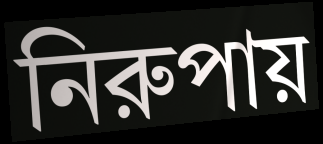
নিরুপায়